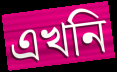
এখনি